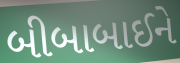
બીબાબાઈને